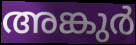
അങ്കുർ